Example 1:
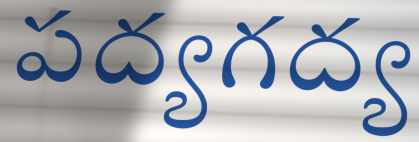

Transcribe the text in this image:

పద్యగద్య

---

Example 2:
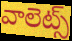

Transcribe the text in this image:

వాలెట్స్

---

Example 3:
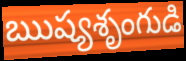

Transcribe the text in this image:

ఋష్యశృంగుడి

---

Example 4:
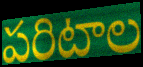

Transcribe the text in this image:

పరిటాల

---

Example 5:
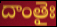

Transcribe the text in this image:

దాంతైః